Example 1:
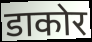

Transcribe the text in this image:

डाकोर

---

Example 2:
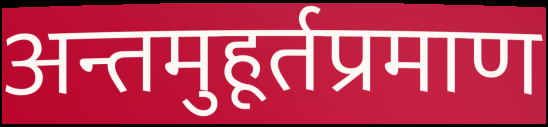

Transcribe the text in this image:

अन्तमुहूर्तप्रमाण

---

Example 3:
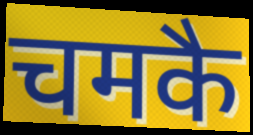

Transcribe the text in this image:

चमकै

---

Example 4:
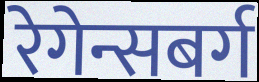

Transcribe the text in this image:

रेगेन्सबर्ग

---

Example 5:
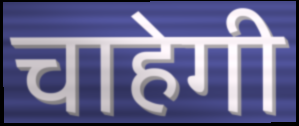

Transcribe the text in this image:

चाहेगी